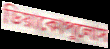
ডিয়াকোপুলোস